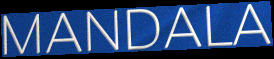
MANDALA